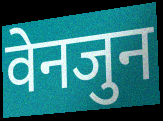
वेनजुन